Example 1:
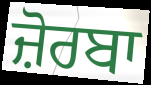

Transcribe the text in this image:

ਜ਼ੋਰਬਾ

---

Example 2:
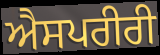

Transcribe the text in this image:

ਐਸਪਰੀਰੀ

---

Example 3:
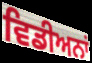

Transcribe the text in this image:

ਵਿਡੀਅਨਾਂ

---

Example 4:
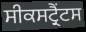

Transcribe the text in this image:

ਸੀਕਸਟ੍ਰੈਂਟਸ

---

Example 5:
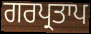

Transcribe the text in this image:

ਗਰਪ੍ਰਤਾਪ